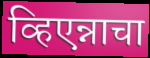
व्हिएन्नाचा